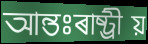
আন্তঃৰাষ্ট্ৰীয়